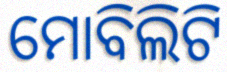
ମୋବିଲିଟି